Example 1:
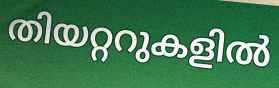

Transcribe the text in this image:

തിയറ്ററുകളിൽ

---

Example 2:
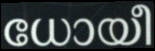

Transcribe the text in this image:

ധോയീ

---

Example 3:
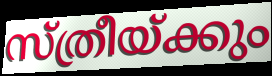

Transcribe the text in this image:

സ്ത്രീയ്ക്കും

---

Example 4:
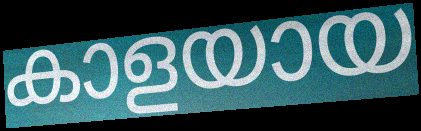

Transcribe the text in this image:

കാളയായ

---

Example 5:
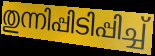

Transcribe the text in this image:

തുന്നിപ്പിടിപ്പിച്ച്